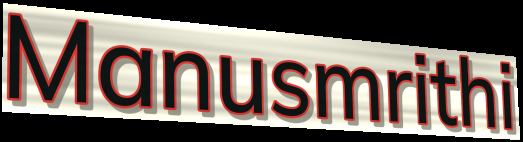
Manusmrithi